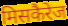
मिसकैरेज